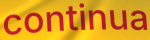
continua